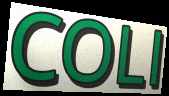
COLI